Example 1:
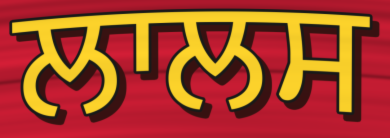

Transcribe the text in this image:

ਲਾਲਸ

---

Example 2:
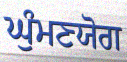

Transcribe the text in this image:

ਘੁੰਮਣਯੋਗ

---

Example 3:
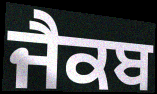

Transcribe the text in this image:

ਜੈਕਬ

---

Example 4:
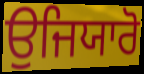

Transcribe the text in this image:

ਉਜਿਯਾਰੋ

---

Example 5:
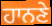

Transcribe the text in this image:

ਹਾਨਣੇ